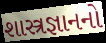
શાસ્ત્રજ્ઞાનનો